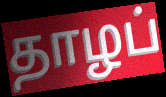
தாழப்